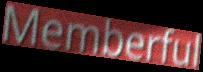
Memberful